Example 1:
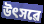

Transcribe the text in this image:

উৎসৱে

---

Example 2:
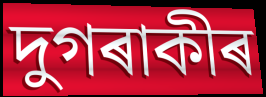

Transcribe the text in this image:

দুগৰাকীৰ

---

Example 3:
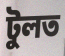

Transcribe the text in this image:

টুলত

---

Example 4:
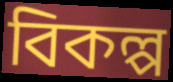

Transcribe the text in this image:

বিকল্প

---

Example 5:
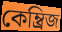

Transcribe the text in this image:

কেম্ব্ৰিজ